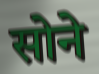
सोने